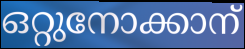
ഒറ്റുനോക്കാന്